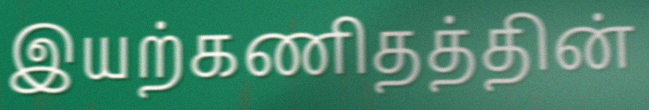
இயற்கணிதத்தின்